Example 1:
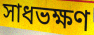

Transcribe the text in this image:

সাধভক্ষণ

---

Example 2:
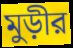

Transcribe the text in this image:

মুড়ীর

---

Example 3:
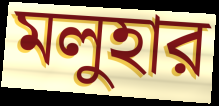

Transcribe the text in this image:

মলুহার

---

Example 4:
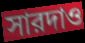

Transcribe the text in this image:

সারদাও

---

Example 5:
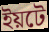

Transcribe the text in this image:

ইয়টে